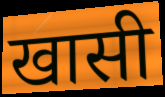
खासी